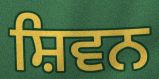
ਸ਼ਿਵਨ